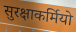
सुरक्षाकर्मियो